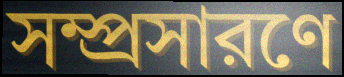
সম্প্রসারণে